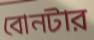
বোনটার